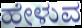
ಹೇಳುವ